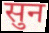
सुन